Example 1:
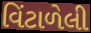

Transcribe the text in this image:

વિંટાળેલી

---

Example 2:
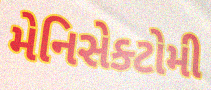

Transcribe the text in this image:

મેનિસેક્ટોમી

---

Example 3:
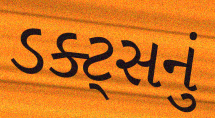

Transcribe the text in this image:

ડક્ટ્સનું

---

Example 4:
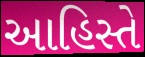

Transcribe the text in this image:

આહિસ્તે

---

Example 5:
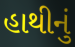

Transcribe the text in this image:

હાથીનું